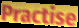
Practise